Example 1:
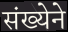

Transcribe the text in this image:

संख्येने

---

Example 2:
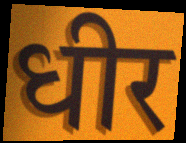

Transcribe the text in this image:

धीर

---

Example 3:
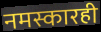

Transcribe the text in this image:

नमस्कारही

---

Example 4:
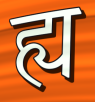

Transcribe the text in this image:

ह्य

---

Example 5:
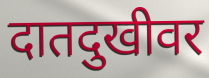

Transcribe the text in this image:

दातदुखीवर